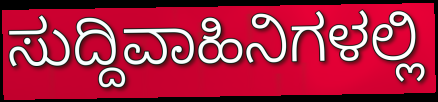
ಸುದ್ದಿವಾಹಿನಿಗಳಲ್ಲಿ